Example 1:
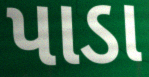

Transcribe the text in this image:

પાડા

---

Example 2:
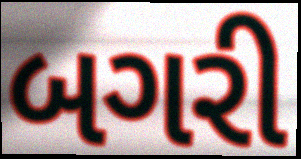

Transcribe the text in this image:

બગરી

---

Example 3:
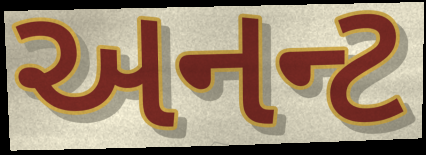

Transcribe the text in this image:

અનન્ટ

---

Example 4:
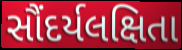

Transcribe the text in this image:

સૌંદર્યલક્ષિતા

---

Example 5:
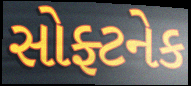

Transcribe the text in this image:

સોફ્ટનેક